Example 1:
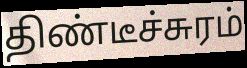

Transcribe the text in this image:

திண்டீச்சுரம்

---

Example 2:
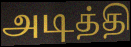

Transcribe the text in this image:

அடித்தி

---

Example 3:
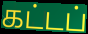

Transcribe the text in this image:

கட்டப்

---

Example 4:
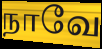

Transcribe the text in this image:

நாவே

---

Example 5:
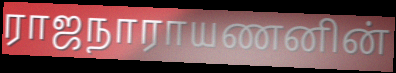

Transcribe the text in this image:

ராஜநாராயணனின்